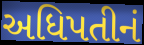
અધિપતીનં